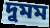
দুমম